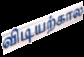
விடியற்கால